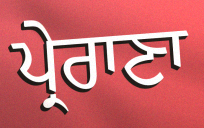
ਪ੍ਰੇਰਾਣਾ